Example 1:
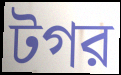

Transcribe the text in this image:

টগর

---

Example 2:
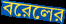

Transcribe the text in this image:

বরেলের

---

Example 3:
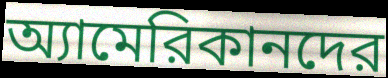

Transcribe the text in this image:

অ্যামেরিকানদের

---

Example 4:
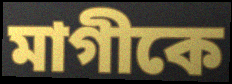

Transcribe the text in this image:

মাগীকে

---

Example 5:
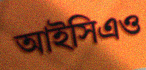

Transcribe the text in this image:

আইসিএও